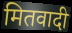
मितवादी